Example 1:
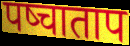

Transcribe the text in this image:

पष्चाताप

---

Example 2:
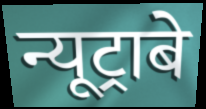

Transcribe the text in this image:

न्यूट्राबे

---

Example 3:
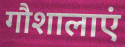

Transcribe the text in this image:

गौशालाएं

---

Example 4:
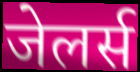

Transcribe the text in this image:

जेलर्स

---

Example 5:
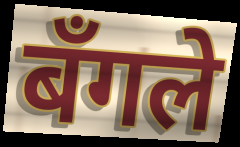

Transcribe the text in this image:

बँगले